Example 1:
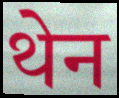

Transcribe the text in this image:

थेन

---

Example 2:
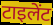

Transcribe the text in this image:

टाइलेंट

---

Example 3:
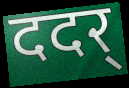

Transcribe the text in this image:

ददर्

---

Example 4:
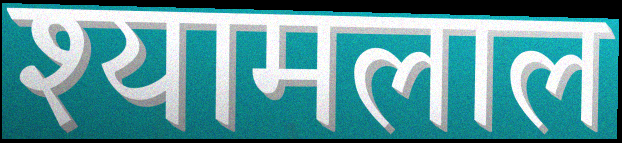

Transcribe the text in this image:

श्यामलाल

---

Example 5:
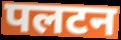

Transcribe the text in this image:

पलटन